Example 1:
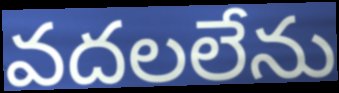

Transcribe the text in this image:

వదలలేను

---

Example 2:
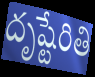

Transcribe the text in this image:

దృష్టేరితి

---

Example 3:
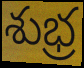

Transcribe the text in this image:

శుభ్ర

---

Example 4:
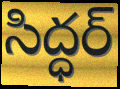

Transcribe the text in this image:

సిద్ధర్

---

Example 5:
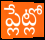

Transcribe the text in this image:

ప్లేట్లో